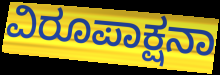
ವಿರೂಪಾಕ್ಷನಾ